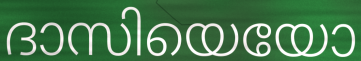
ദാസിയെയോ